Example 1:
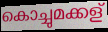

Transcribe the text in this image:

കൊച്ചുമക്കള്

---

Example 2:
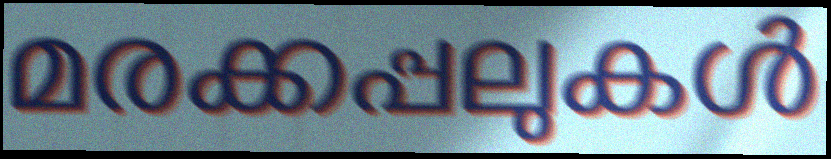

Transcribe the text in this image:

മരക്കപ്പലുകൾ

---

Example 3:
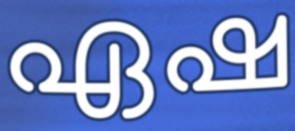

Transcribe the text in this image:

ഏഷ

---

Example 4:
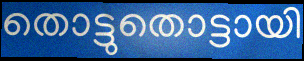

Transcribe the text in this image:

തൊട്ടുതൊട്ടായി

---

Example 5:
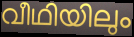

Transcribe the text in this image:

വീഥിയിലും